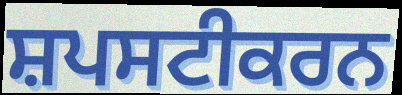
ਸ਼ਪਸਟੀਕਰਨ